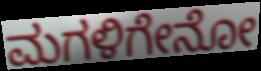
ಮಗಳಿಗೇನೋ